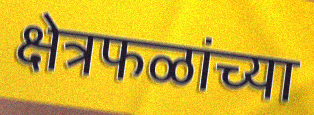
क्षेत्रफळांच्या